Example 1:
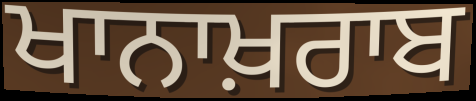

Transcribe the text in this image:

ਖਾਨਾਖ਼ਰਾਬ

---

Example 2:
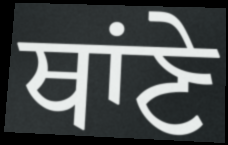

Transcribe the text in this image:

ਥਾਂਣੇ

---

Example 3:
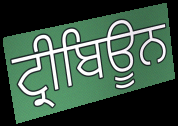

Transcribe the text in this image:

ਟ੍ਰੀਬਿਊਨ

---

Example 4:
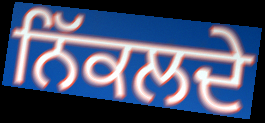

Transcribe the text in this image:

ਨਿੱਕਲਦੇ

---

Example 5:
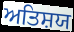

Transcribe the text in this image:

ਅਤਿਸ਼ਯ